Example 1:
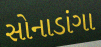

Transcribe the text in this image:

સોનાડાંગા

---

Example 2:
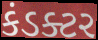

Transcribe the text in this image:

કંડક્ટર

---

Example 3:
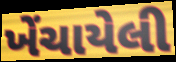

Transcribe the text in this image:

ખેંચાયેલી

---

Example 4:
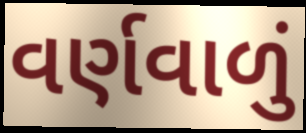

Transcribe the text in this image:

વર્ણવાળું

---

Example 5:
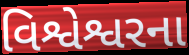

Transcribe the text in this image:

વિશ્વેશ્વરના